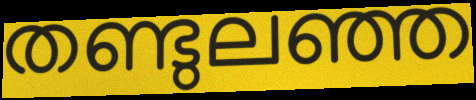
തണ്ടുലഞ്ഞ